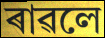
ৰাৱলে